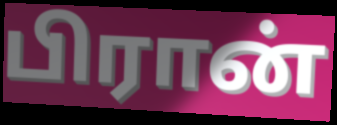
பிரான்